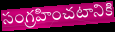
సంగ్రహించటానికి